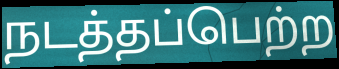
நடத்தப்பெற்ற